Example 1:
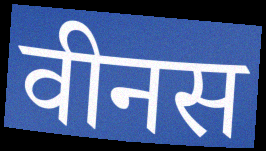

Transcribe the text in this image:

वीनस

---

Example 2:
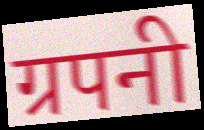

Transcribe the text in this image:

ग्रपनी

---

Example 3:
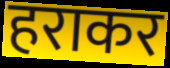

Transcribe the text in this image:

हराकर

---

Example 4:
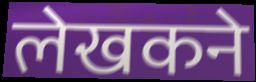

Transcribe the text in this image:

लेखकने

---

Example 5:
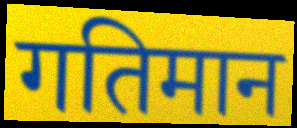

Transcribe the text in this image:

गतिमान